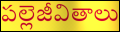
పల్లెజీవితాలు